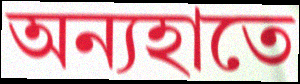
অন্যহাতে